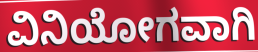
ವಿನಿಯೋಗವಾಗಿ